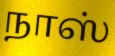
நாஸ்